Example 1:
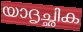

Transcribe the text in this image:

യാദൃച്ഛിക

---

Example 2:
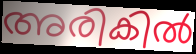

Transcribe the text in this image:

അരികിൽ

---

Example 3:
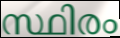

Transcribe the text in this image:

സ്ഥിരം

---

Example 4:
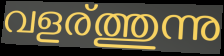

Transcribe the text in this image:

വളര്ത്തുന്നു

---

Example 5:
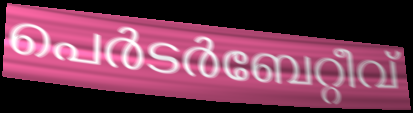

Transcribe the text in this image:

പെർടർബേറ്റീവ്